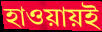
হাওয়ায়ই